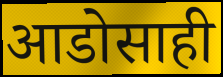
आडोसाही